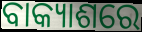
ବାକ୍ୟାଶରେ